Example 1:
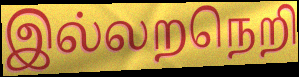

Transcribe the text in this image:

இல்லறநெறி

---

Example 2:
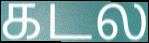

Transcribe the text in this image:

கடல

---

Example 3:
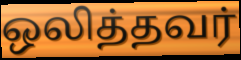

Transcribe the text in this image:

ஒலித்தவர்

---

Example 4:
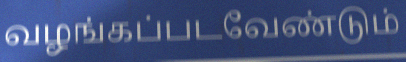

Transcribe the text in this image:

வழங்கப்படவேண்டும்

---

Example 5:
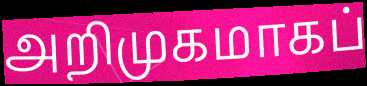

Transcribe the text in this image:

அறிமுகமாகப்